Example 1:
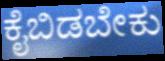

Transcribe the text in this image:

ಕೈಬಿಡಬೇಕು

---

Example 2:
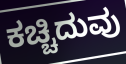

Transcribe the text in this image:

ಕಚ್ಚಿದುವು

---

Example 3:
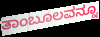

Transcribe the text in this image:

ತಾಂಬೂಲವನ್ನೂ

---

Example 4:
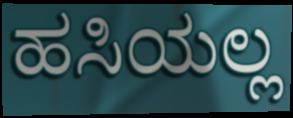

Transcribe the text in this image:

ಹಸಿಯಲ್ಲ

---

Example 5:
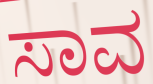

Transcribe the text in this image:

ಸಾವ